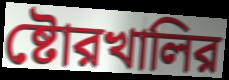
ষ্টোরখালির